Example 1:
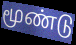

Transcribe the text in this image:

மூண்டு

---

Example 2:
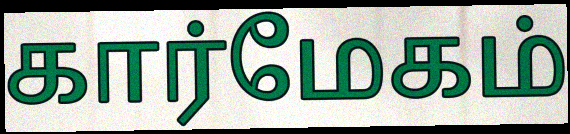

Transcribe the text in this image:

கார்மேகம்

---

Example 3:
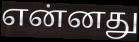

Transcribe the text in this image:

என்னது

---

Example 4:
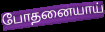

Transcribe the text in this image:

போதனையாய்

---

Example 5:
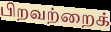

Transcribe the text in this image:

பிறவற்றைக்